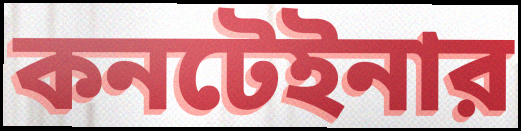
কনটেইনার